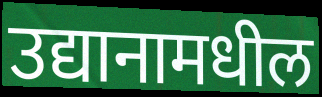
उद्यानामधील